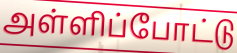
அள்ளிப்போட்டு